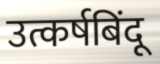
उत्कर्षबिंदू